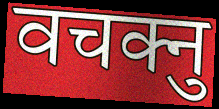
वचक्नु